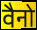
वैनो